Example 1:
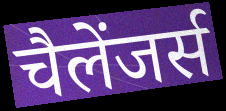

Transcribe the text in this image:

चैलेंजर्स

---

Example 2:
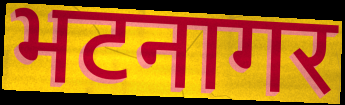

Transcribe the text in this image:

भटनागर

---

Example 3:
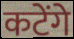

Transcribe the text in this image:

कटेंगे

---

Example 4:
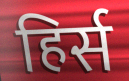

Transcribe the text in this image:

हिर्स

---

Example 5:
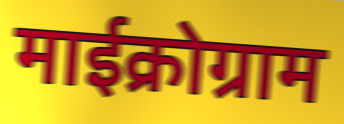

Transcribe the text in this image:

माईक्रोग्राम